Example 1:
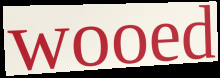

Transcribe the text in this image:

wooed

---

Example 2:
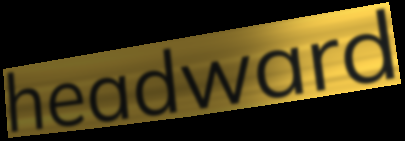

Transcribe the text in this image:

headward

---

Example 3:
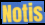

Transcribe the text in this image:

Notis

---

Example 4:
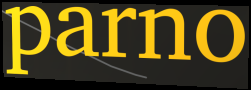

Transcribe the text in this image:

parno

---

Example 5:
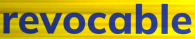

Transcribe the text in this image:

revocable